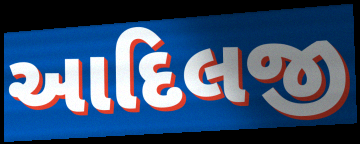
આદિલજી